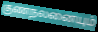
குணநலனையும்